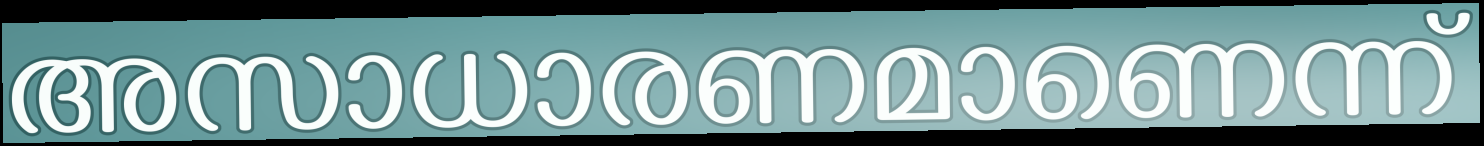
അസാധാരണമാണെന്ന്